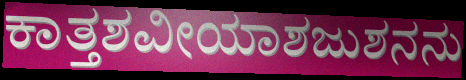
ಕಾತ್ತಶವೀಯಾಶಜುಶನನು